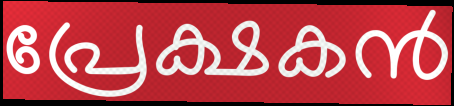
പ്രേക്ഷകൻ